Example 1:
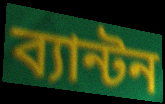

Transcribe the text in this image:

ব্যান্টন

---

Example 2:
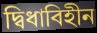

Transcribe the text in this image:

দ্বিধাবিহীন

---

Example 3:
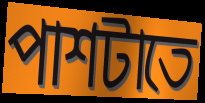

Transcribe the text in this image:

পাশটাতে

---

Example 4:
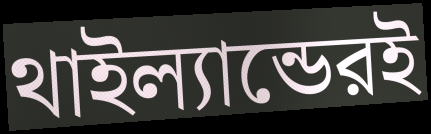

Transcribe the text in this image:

থাইল্যান্ডেরই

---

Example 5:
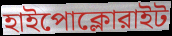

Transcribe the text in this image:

হাইপোক্লোরাইট